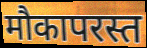
मौकापरस्त